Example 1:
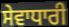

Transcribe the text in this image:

ਸੇਵਾਧਾਰੀ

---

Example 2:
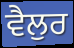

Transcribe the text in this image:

ਵੈਲੁਰ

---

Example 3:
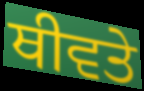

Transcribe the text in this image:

ਥੀਵਤੇ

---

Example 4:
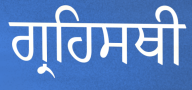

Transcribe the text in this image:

ਗ੍ਰਹਿਸਥੀ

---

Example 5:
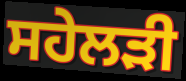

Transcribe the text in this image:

ਸਹੇਲੜੀ